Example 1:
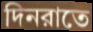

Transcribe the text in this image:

দিনরাতে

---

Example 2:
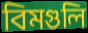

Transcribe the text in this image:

বিমগুলি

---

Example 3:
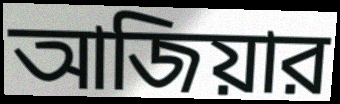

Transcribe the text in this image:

আজিয়ার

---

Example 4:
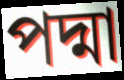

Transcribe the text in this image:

পদ্মা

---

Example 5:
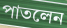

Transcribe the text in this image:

পাতলেন